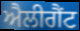
ਐਲੀਗੈਂਟ